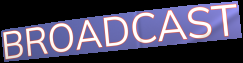
BROADCAST